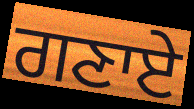
ਗਣਾਏ